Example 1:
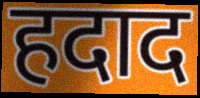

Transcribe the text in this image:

हदाद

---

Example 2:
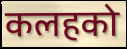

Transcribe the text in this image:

कलहको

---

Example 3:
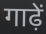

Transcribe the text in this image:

गाढ़ें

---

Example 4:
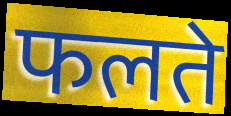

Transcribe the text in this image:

फलते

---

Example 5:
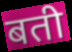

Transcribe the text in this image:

बती